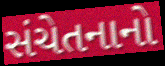
સંચેતનાનો